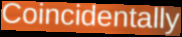
Coincidentally